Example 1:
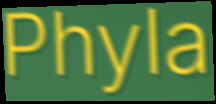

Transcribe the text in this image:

Phyla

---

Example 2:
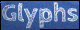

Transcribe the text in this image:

Glyphs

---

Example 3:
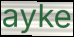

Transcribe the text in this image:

ayke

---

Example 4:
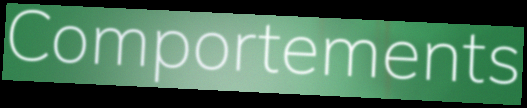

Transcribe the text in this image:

Comportements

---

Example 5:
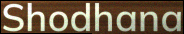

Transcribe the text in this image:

Shodhana